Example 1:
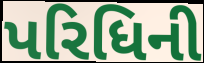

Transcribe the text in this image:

પરિધિની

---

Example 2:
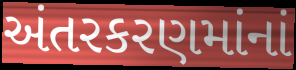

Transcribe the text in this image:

અંતરકરણમાંનાં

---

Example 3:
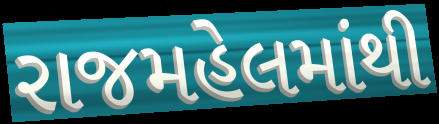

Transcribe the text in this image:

રાજમહેલમાંથી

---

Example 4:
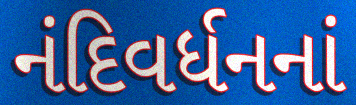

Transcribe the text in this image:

નંદિવર્ધનનાં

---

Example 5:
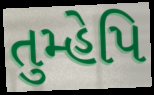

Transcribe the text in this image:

તુમ્હેપિ